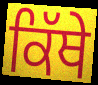
ਕਿੱਥੇ